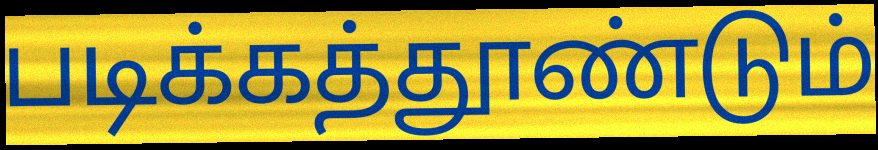
படிக்கத்தூண்டும்